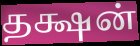
தக்ஷன்